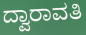
ದ್ವಾರಾವತಿ